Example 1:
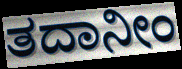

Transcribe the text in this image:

ತದಾನೀಂ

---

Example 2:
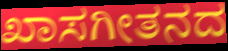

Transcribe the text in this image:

ಖಾಸಗೀತನದ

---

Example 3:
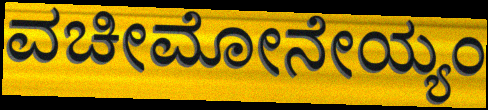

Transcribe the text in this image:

ವಚೀಮೋನೇಯ್ಯಂ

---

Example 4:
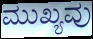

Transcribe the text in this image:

ಮುಖ್ಯವು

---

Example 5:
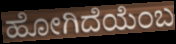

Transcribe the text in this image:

ಹೋಗಿದೆಯೆಂಬ